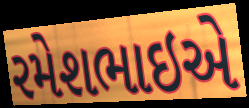
રમેશભાઇએ